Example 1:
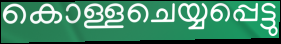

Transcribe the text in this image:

കൊള്ളചെയ്യപ്പെട്ടു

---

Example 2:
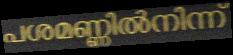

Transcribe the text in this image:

പശമണ്ണിൽനിന്ന്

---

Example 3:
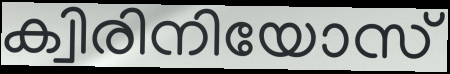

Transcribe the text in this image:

ക്വിരിനിയോസ്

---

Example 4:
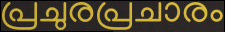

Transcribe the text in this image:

പ്രചുരപ്രചാരം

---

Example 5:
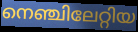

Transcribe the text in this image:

നെഞ്ചിലേറ്റിയ